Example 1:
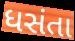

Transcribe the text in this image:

ધસંતા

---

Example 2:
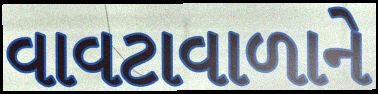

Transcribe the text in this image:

વાવટાવાળાને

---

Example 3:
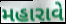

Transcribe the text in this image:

મહારાવે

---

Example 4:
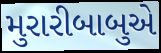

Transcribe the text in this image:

મુરારીબાબુએ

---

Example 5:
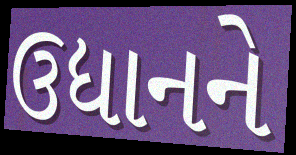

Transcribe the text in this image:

ઉદ્યાનને